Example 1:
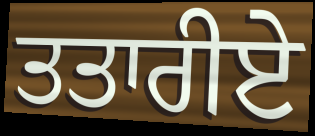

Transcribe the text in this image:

ਤਤਾਰੀਏ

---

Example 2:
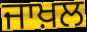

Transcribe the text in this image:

ਜਾਖ਼ਲ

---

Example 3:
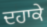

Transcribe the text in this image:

ਦਹਾਕੇ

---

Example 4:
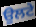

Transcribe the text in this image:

ਉਲਟੇ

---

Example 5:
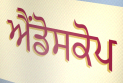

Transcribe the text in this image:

ਐਂਡੋਸਕੋਪ